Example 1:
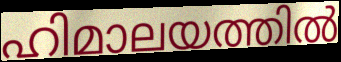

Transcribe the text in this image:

ഹിമാലയത്തിൽ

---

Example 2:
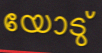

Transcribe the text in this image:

യോടു്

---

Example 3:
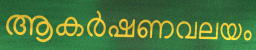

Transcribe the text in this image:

ആകർഷണവലയം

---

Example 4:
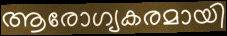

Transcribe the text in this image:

ആരോഗ്യകരമായി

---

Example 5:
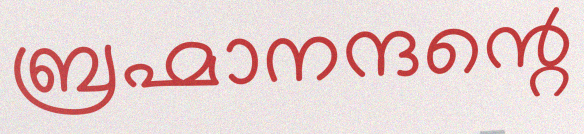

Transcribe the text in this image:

ബ്രഹ്മാനന്ദന്റെ